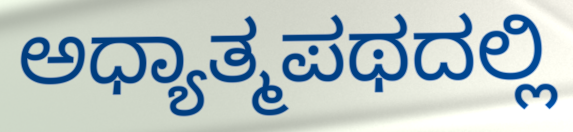
ಅಧ್ಯಾತ್ಮಪಥದಲ್ಲಿ